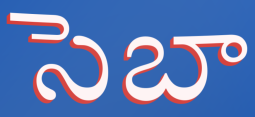
సెబా